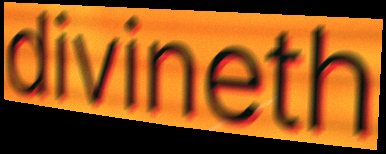
divineth